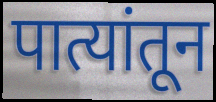
पात्यांतून